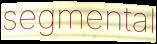
segmental